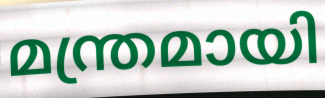
മന്ത്രമായി